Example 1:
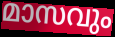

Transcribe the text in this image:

മാസവും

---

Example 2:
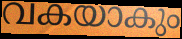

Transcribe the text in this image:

വകയാകും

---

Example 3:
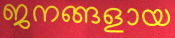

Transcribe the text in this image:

ജനങ്ങളായ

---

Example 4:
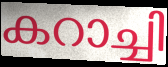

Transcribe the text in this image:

കറാച്ചി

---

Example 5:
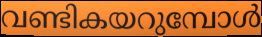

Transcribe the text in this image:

വണ്ടികയറുമ്പോൾ